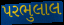
પરભુલાલ